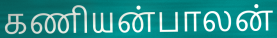
கணியன்பாலன்